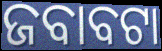
ଜବାବଟା